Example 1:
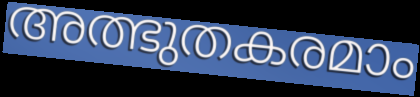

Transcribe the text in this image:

അത്ഭുതകരമാം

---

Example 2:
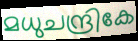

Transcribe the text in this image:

മധുചന്ദ്രികേ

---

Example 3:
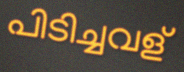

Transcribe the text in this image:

പിടിച്ചവള്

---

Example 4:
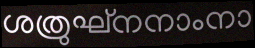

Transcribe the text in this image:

ശത്രുഘ്നനാംനാ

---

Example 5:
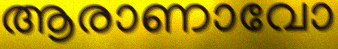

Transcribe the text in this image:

ആരാണാവോ